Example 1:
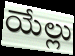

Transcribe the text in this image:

యేల్లు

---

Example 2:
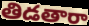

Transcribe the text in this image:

తిడతారా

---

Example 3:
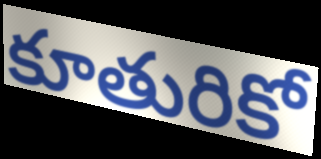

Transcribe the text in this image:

కూతురికో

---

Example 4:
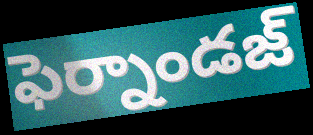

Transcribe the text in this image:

ఫెర్నాండజ్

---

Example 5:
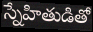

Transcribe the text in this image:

స్నేహితుడితో